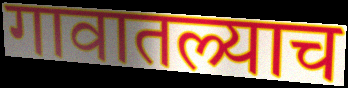
गावातल्याच